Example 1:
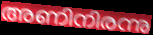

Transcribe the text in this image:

അണിനിരന്നു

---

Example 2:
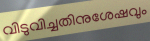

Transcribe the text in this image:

വിടുവിച്ചതിനുശേഷവും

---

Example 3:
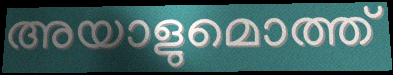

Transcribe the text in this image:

അയാളുമൊത്ത്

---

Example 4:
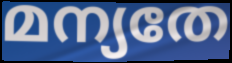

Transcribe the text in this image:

മന്യതേ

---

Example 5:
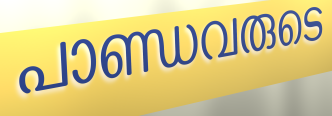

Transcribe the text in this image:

പാണ്ഡവരുടെ